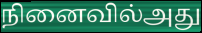
நினைவில்அது